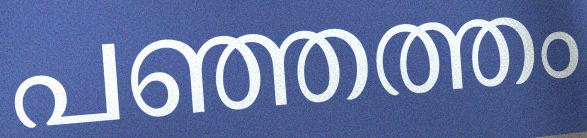
പഞ്ഞത്തം